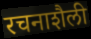
रचनाशैली